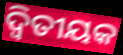
ଦ୍ୱିତୀୟକ